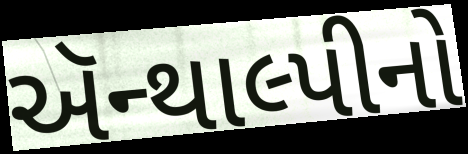
ઍન્થાલ્પીનો